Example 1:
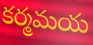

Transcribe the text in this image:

కర్మమయ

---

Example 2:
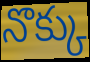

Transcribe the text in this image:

నొక్కు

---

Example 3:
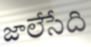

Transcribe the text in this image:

జాలేసేది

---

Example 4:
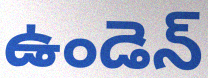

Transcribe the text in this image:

ఉండెన్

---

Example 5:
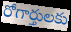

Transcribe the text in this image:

రోగార్తులకు